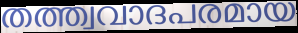
തത്ത്വവാദപരമായ